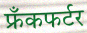
फ्रँकफर्टर